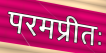
परमप्रीतः